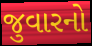
જુવારનો